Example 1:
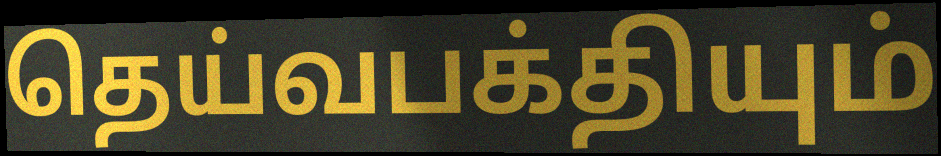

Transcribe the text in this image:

தெய்வபக்தியும்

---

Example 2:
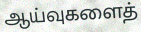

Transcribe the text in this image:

ஆய்வுகளைத்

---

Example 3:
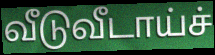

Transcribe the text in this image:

வீடுவீடாய்ச்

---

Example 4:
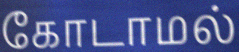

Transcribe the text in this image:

கோடாமல்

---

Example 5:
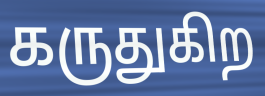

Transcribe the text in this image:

கருதுகிற